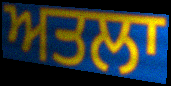
ਅਤਲਾ